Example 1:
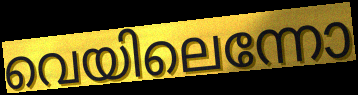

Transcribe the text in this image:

വെയിലെന്നോ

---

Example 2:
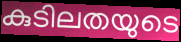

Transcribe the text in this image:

കുടിലതയുടെ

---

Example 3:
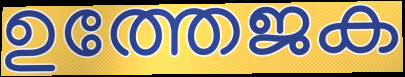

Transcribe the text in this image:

ഉത്തേജക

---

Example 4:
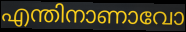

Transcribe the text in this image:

എന്തിനാണാവോ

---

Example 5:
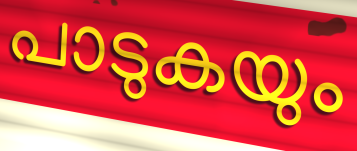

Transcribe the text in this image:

പാടുകയും